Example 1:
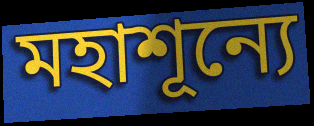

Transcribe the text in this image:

মহাশূন্যে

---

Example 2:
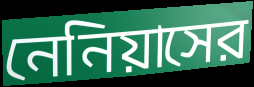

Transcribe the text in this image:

নেনিয়াসের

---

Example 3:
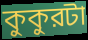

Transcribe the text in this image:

কুকুরটা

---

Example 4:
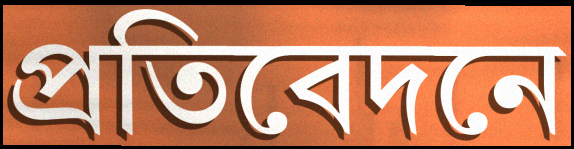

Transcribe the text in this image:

প্রতিবেদনে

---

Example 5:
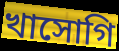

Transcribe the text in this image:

খাসোগি